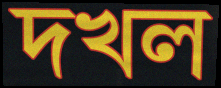
দখল